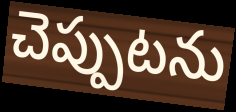
చెప్పుటను